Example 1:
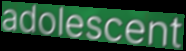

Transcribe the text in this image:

adolescent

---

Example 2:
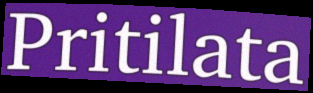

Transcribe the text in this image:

Pritilata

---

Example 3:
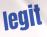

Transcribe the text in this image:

legit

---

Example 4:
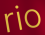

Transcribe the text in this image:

rio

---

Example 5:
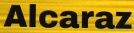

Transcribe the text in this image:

Alcaraz